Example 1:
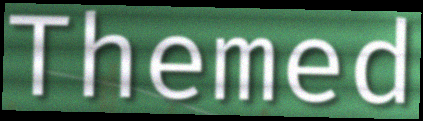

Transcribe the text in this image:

Themed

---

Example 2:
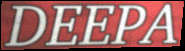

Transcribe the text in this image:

DEEPA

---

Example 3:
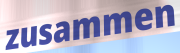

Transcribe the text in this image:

zusammen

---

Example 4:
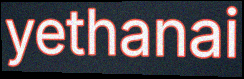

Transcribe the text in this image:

yethanai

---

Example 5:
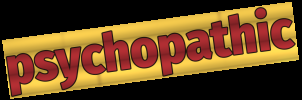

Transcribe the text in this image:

psychopathic